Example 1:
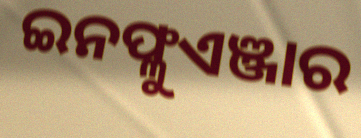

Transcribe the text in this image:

ଇନଫ୍ଳୁଏଞ୍ଜାର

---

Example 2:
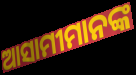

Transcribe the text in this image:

ଆସାମୀମାନଙ୍କ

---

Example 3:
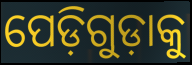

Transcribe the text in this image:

ପେଡ଼ିଗୁଡ଼ାକୁ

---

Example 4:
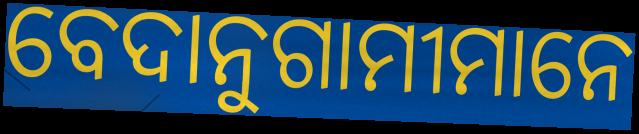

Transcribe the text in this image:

ବେଦାନୁଗାମୀମାନେ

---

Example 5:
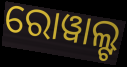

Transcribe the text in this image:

ରୋୱାଲ୍ଟ